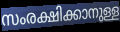
സംരക്ഷിക്കാനുള്ള